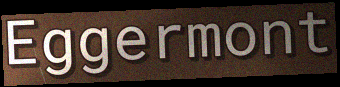
Eggermont